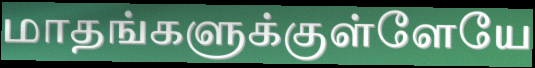
மாதங்களுக்குள்ளேயே